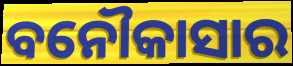
ବନୌକାସାର